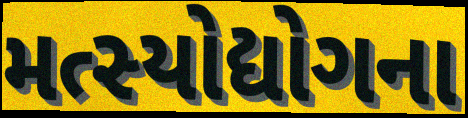
મત્સ્યોદ્યોગના